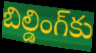
బిల్డింగ్‌కు